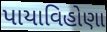
પાયાવિહોણા